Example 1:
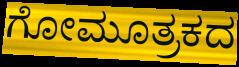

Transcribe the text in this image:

ಗೋಮೂತ್ರಕದ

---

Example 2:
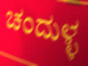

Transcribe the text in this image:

ಚಂದುಳ್ಳ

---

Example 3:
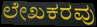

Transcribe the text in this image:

ಲೇಖಕರವು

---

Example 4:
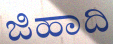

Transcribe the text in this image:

ಜಿಹಾದಿ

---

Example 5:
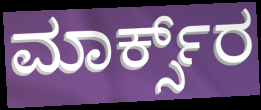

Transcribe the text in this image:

ಮಾರ್ಕ್ಸ್‌ರ